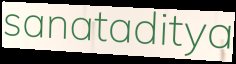
sanataditya